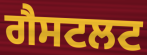
ਗੈਸਟਲਟ